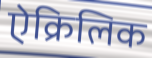
ऐक्रिलिक